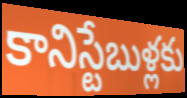
కానిస్టేబుళ్లకు